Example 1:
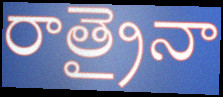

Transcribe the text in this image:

రాత్రైనా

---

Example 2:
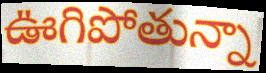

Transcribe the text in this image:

ఊగిపోతున్నా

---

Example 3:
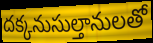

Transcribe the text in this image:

దక్కనుసుల్తానులతో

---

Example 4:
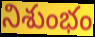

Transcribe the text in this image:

నిశుంభం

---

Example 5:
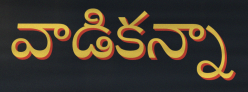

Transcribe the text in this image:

వాడికన్నా